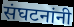
संघटनांनी